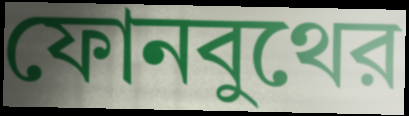
ফোনবুথের